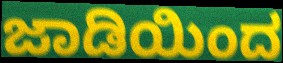
ಜಾಡಿಯಿಂದ